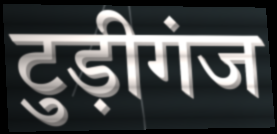
टुड़ीगंज